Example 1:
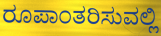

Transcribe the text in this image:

ರೂಪಾಂತರಿಸುವಲ್ಲಿ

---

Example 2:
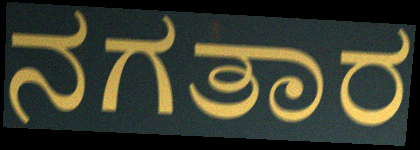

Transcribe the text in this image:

ನಗತಾರ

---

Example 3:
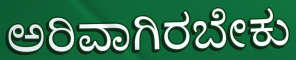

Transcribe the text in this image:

ಅರಿವಾಗಿರಬೇಕು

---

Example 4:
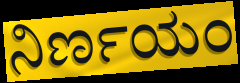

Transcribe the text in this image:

ನಿರ್ಣಯಂ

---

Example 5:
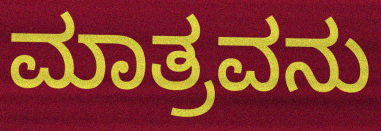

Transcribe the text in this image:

ಮಾತ್ರವನು